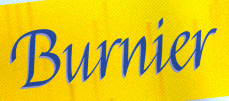
Burnier